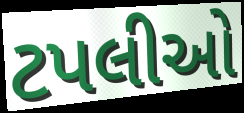
ટપલીઓ